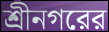
শ্রীনগরের